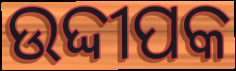
ଉଦ୍ଦୀପକ